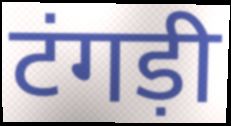
टंगड़ी